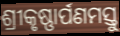
ଶ୍ରୀକୃଷ୍ଣାର୍ପଣମସ୍ତୁ